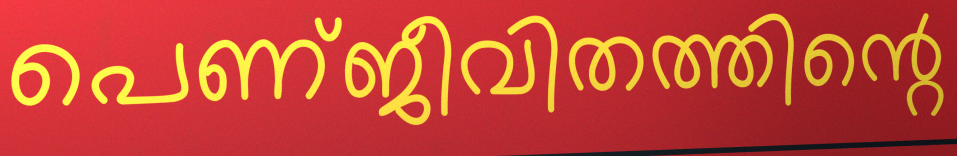
പെണ്ജീവിതത്തിന്റെ